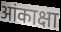
आंकाक्षा